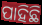
ପାହିଛି